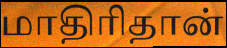
மாதிரிதான்